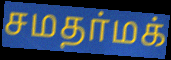
சமதர்மக்